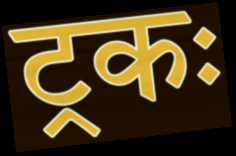
ट्रकः